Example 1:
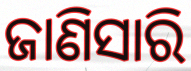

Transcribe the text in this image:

ଜାଣିସାରି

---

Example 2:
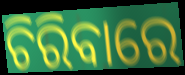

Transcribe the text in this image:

ଚିରିବାରେ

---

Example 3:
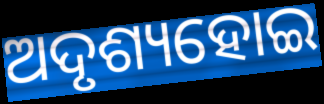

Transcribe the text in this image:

ଅଦୃଶ୍ୟହୋଇ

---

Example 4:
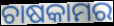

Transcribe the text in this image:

ଚାଷକାମର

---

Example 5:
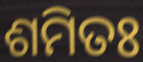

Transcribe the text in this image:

ଶମିତଃ